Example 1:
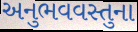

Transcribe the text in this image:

અનુભવવસ્તુના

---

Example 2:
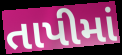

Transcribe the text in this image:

તાપીમાં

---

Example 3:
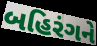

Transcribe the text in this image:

બહિરંગને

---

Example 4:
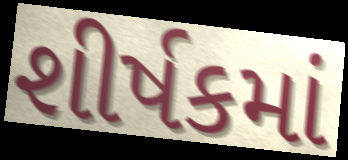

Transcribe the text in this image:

શીર્ષકમાં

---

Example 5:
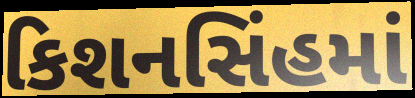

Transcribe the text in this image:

કિશનસિંહમાં